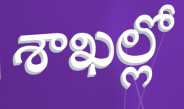
శాఖల్లో